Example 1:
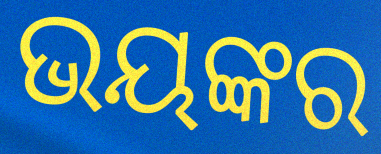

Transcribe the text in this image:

ଭୟଙ୍କର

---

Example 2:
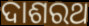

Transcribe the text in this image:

ଦାଶରଥ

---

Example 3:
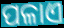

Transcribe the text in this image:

ପଳାଏ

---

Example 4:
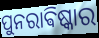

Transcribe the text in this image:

ପୁନରାଵିଷ୍କାର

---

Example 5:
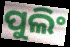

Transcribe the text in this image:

ପୁଲିଂ